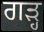
ਗੜ੍ਹ